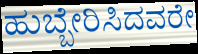
ಹುಬ್ಬೇರಿಸಿದವರೇ